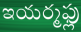
ఇయర్మఫ్లు